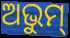
ଅଭୁମ୍